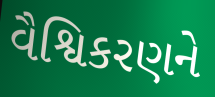
વૈશ્વિકરણને